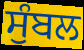
ਸੁੰਬਲ